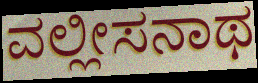
ವಲ್ಲೀಸನಾಥ